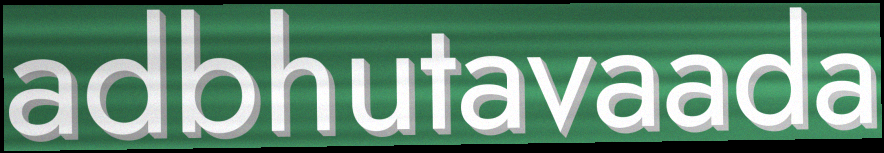
adbhutavaada